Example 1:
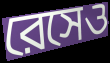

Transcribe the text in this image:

রেসেও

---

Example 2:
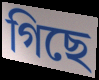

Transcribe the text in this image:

গিছে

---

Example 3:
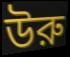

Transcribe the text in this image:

উরু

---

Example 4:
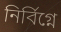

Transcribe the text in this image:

নির্বিগ্নে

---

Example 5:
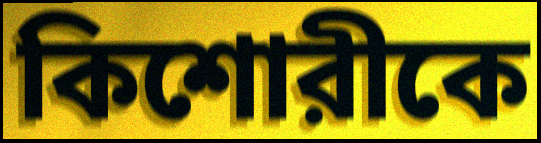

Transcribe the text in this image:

কিশোরীকে